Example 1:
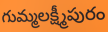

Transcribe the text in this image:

గుమ్మలక్ష్మీపురం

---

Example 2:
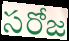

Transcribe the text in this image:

సరోజ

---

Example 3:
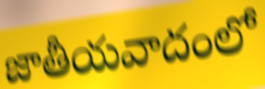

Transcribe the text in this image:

జాతీయవాదంలో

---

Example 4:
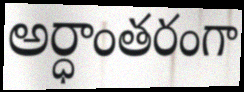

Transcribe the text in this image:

అర్ధాంతరంగా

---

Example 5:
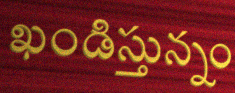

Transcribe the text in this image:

ఖండిస్తున్నం